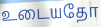
உடையதோ